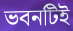
ভবনটিই